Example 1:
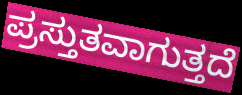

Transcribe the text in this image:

ಪ್ರಸ್ತುತವಾಗುತ್ತದೆ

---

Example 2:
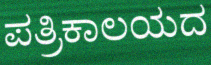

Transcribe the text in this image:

ಪತ್ರಿಕಾಲಯದ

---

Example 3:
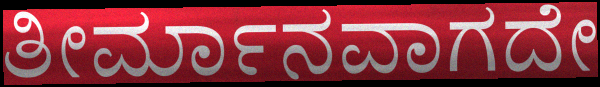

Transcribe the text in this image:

ತೀರ್ಮಾನವಾಗದೇ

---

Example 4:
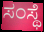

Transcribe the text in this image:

ಸಂಸ್ಥೆ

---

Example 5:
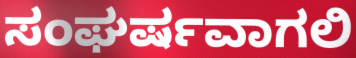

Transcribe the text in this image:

ಸಂಘರ್ಷವಾಗಲಿ